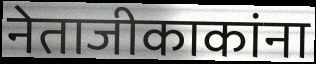
नेताजीकाकांना